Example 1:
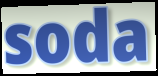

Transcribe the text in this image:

soda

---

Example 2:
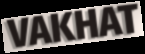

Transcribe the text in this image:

VAKHAT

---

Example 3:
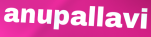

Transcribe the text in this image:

anupallavi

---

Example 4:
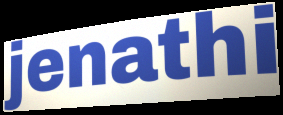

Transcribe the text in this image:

jenathi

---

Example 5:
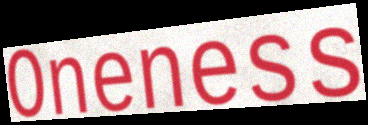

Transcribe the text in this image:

Oneness